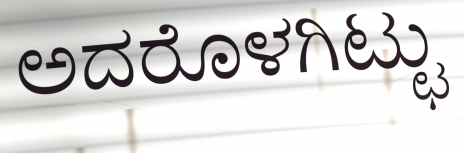
ಅದರೊಳಗಿಟ್ಟು